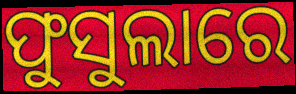
ଫୁସୁଲାରେ